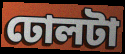
ঢোলটা